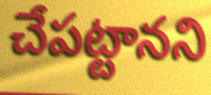
చేపట్టానని